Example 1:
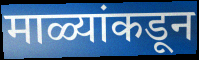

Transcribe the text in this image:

माळ्यांकडून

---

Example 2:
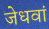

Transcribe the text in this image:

जेधवां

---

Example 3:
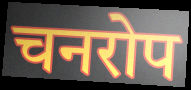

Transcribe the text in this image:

चनरोप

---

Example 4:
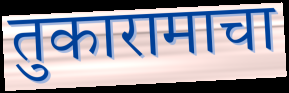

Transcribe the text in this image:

तुकारामाचा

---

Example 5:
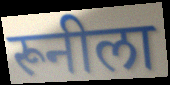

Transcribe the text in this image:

रूनीला